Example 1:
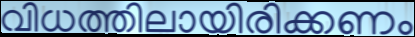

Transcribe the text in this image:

വിധത്തിലായിരിക്കണം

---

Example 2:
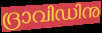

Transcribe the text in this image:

ദ്രാവിഡിനു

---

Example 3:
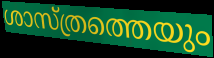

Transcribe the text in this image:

ശാസ്ത്രത്തെയും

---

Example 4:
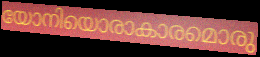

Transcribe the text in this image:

യോനിയൊരാകാരമൊരു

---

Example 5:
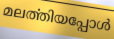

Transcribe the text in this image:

മലൎത്തിയപ്പോൾ